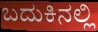
ಬದುಕಿನಲ್ಲಿ